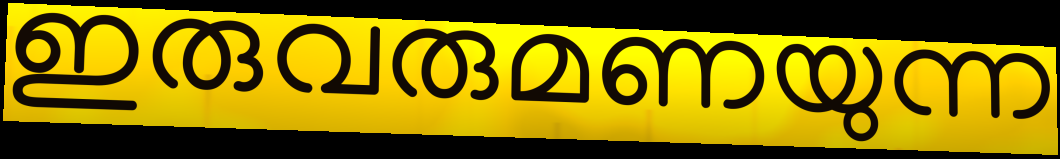
ഇരുവരുമണയുന്ന